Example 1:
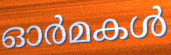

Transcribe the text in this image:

ഓർമകൾ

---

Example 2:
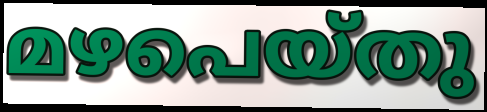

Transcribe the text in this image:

മഴപെയ്തു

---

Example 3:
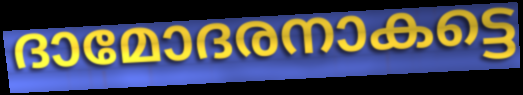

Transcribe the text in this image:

ദാമോദരനാകട്ടെ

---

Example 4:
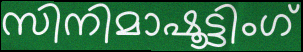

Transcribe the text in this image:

സിനിമാഷൂട്ടിംഗ്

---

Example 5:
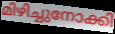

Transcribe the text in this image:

മിഴിച്ചുനോക്കി